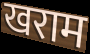
खराम